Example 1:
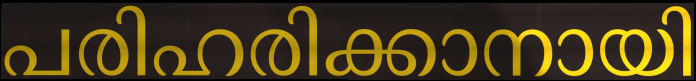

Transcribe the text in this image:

പരിഹരിക്കാനായി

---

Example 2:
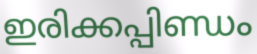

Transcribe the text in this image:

ഇരിക്കപ്പിണ്ഡം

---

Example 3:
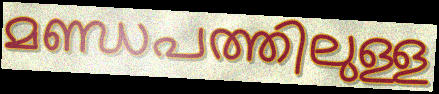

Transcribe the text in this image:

മണ്ഡപത്തിലുള്ള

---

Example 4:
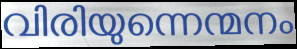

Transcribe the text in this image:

വിരിയുന്നെന്മനം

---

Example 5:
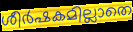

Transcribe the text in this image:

ശീർഷകമില്ലാതെ